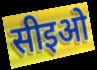
सीइओ